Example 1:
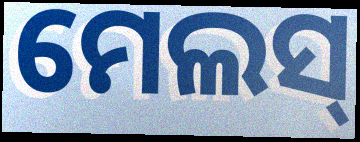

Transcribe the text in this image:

ମେଲସ୍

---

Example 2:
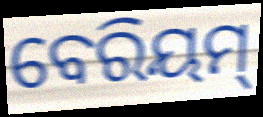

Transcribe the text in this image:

ବେରିୟମ୍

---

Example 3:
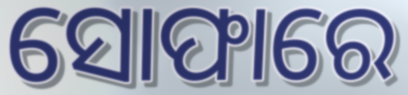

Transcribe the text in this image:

ସୋଫାରେ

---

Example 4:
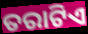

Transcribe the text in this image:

ତରାଟିଏ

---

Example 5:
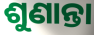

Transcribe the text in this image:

ଶୁଣାନ୍ତା